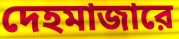
দেহমাজারে